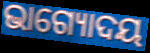
ଭାଗ୍ୟୋଦୟ